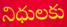
నిధులకు